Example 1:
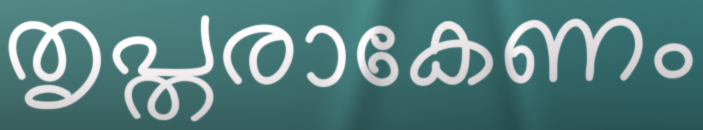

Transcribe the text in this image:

തൃപ്തരാകേണം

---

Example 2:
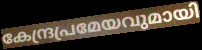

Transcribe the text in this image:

കേന്ദ്രപ്രമേയവുമായി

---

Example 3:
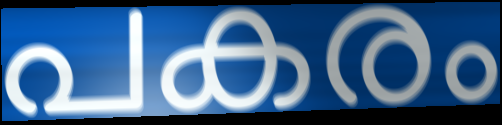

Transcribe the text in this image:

പകരം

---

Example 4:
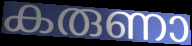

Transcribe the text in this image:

കരുണാ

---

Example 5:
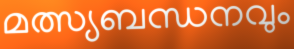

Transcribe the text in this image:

മത്സ്യബന്ധനവും